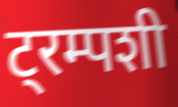
ट्रम्पशी